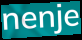
nenje